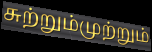
சுற்றும்முற்றும்